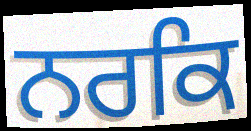
ਨਰਕਿ